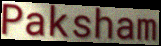
Paksham